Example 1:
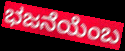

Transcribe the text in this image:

ಭಜನೆಯೆಂಬ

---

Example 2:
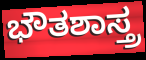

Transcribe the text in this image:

ಭೌತಶಾಸ್ತ್ರ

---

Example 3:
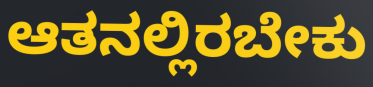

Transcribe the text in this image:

ಆತನಲ್ಲಿರಬೇಕು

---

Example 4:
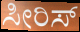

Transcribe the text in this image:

ಸೀರಿಸ್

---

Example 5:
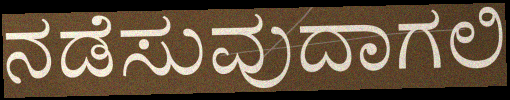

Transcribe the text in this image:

ನಡೆಸುವುದಾಗಲಿ